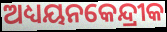
ଅଧ୍ୟୟନକେନ୍ଦ୍ରୀକ